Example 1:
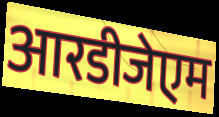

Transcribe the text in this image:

आरडीजेएम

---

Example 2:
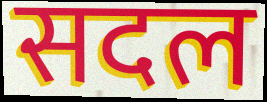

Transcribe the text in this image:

सदल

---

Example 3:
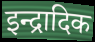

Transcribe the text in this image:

इन्द्रादिक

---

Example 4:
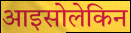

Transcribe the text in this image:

आइसोलेकिन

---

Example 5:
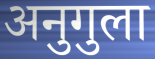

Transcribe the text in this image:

अनुगुला